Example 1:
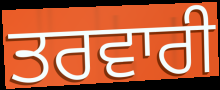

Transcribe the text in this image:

ਤਰਵਾਰੀ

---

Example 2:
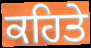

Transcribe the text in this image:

ਕਹਿਤੇ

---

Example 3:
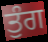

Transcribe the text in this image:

ਤੁੰਗ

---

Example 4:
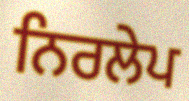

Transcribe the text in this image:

ਨਿਰਲੇਪ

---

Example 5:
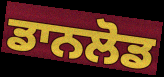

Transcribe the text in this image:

ਡਾਨਲੋਡ